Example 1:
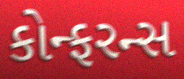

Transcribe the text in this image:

કોન્ફરન્સ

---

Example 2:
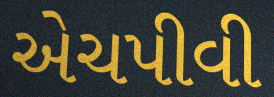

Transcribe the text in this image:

એચપીવી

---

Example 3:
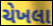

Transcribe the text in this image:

ચેખલા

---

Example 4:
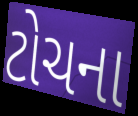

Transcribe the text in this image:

ટોચના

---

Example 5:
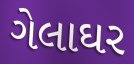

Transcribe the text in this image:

ગેલાઘર